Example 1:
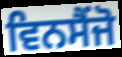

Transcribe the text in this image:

ਵਿਨਸੈਂਜੋ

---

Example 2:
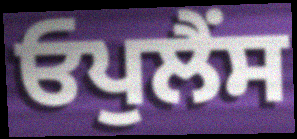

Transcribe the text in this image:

ਓਪੁਲੈਂਸ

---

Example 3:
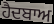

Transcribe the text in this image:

ਹੈਦਬਾਅ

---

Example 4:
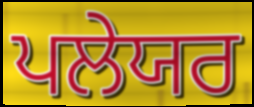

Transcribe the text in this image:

ਪਲੇਯਰ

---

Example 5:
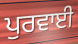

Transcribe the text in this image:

ਪੁਰਵਾਈ